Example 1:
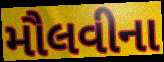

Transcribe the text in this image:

મૌલવીના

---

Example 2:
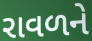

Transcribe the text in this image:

રાવળને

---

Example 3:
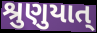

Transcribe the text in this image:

શ્રુણુયાત્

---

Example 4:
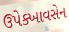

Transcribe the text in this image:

ઉપેક્ખાવસેન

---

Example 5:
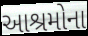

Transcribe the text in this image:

આશ્રમોના